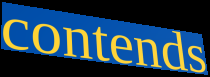
contends